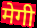
मेगी